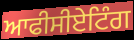
ਆਫੀਸੀਏਟਿੰਗ